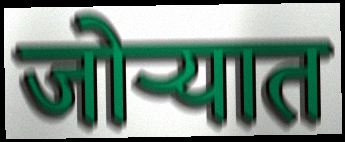
जोऱ्यात